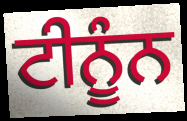
ਟੀਨੂੰਨ